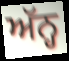
ਅੱਨ੍ਹ